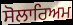
ਸੋਲਾਰਿਅਮ